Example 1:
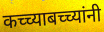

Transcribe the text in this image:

कच्च्याबच्च्यांनी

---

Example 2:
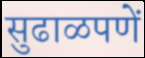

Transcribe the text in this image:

सुढाळपणें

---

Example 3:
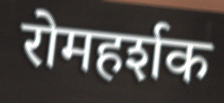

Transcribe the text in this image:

रोमहर्शक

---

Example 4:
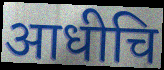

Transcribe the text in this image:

आधीचि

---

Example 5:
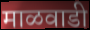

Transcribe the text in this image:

माळवाडी